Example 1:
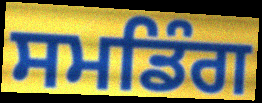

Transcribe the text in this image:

ਸਮਡਿੰਗ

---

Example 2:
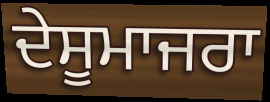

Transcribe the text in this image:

ਦੇਸੂਮਾਜਰਾ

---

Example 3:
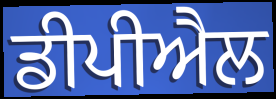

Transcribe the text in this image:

ਡੀਪੀਐਲ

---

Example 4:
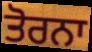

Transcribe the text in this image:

ਤੋਰਨਾ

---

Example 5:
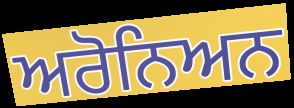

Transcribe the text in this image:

ਅਰੋਨਿਅਨ